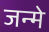
जन्मे